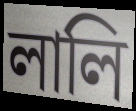
লালি